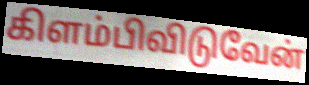
கிளம்பிவிடுவேன்